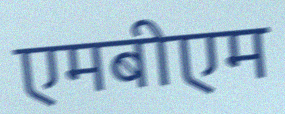
एमबीएम